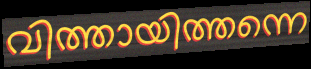
വിത്തായിത്തന്നെ